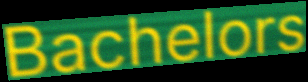
Bachelors